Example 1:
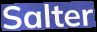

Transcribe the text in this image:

Salter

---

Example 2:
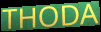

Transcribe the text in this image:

THODA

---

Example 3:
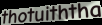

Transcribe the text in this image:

thotuiththa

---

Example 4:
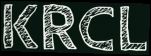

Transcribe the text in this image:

KRCL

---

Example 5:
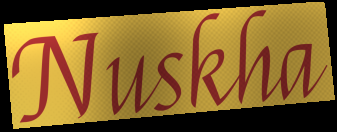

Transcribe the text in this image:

Nuskha